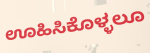
ಊಹಿಸಿಕೊಳ್ಳಲೂ